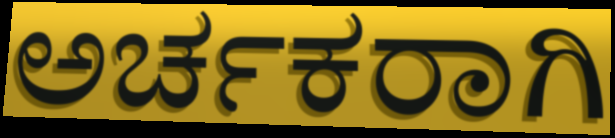
ಅರ್ಚಕರಾಗಿ